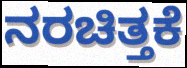
ನರಚಿತ್ತಕೆ